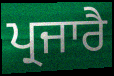
ਪ੍ਰਜਾਰੈ